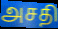
அசதி